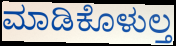
ಮಾಡಿಕೊಳುಲ್ತ